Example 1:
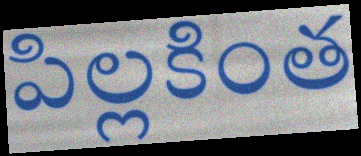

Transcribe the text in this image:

పిల్లకింత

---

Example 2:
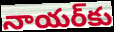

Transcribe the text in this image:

నాయర్‌కు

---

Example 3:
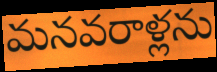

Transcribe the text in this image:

మనవరాళ్లను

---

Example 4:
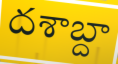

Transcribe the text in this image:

దశాబ్దా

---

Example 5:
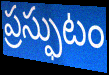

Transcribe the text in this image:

ప్రస్ఫుటం